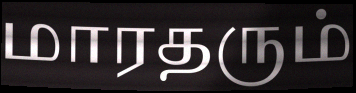
மாரதரும்